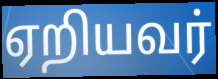
ஏறியவர்